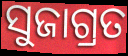
ସୁଜାଗ୍ରତ